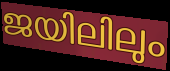
ജയിലിലും